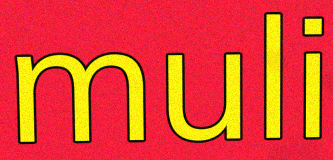
muli